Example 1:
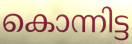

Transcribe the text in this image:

കൊന്നിട്ട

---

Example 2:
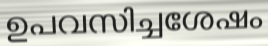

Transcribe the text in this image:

ഉപവസിച്ചശേഷം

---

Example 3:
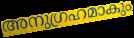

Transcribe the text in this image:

അനുഗ്രഹമാകും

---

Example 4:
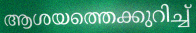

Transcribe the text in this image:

ആശയത്തെക്കുറിച്ച്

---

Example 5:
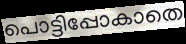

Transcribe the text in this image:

പൊട്ടിപ്പോകാതെ